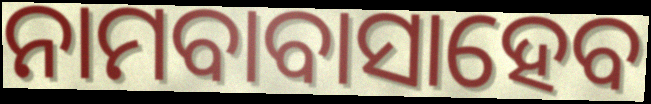
ନାମବାବାସାହେବ